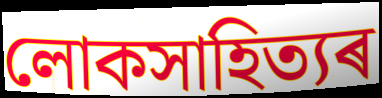
লোকসাহিত্যৰ